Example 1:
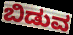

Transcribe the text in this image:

ಬಿಡುವ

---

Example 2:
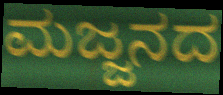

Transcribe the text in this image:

ಮಜ್ಜನದ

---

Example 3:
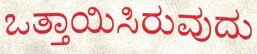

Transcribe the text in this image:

ಒತ್ತಾಯಿಸಿರುವುದು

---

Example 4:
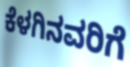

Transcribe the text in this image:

ಕೆಳಗಿನವರಿಗೆ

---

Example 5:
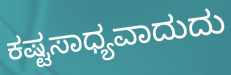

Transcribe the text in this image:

ಕಷ್ಟಸಾಧ್ಯವಾದುದು